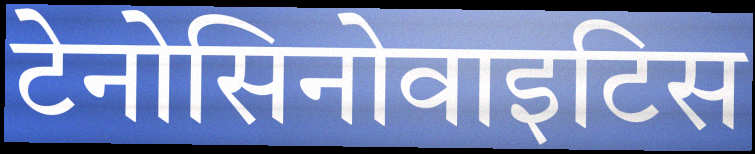
टेनोसिनोवाइटिस